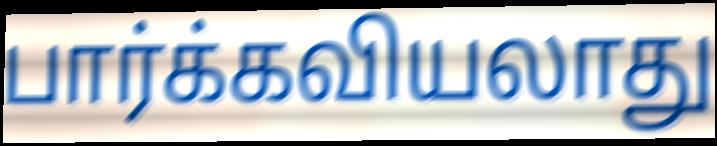
பார்க்கவியலாது